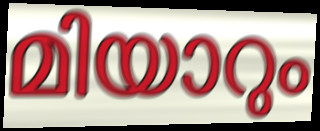
മിയാറും